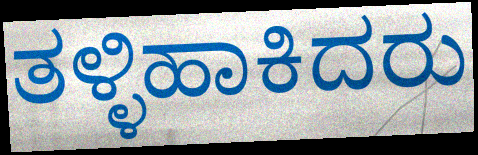
ತಳ್ಳಿಹಾಕಿದರು